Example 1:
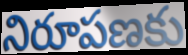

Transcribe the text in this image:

నిరూపణకు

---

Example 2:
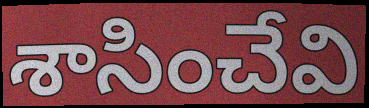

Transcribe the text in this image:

శాసించేవి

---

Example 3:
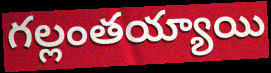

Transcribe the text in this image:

గల్లంతయ్యాయి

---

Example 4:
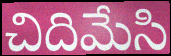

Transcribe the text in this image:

చిదిమేసి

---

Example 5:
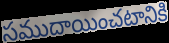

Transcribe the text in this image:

సముదాయించటానికి